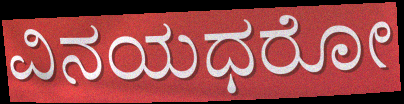
ವಿನಯಧರೋ